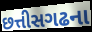
છત્તીસગઢના